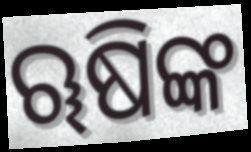
ୠଷିଙ୍କ